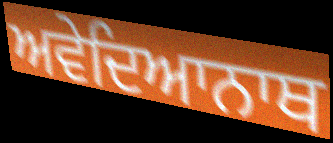
ਅਵੇਦਿਆਨਾਥ